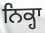
ਨਿਕ੍ਹਾ